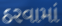
ઠરવામાં